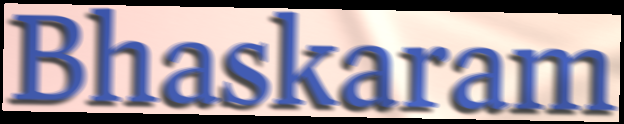
Bhaskaram